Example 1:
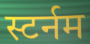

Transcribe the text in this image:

स्टर्नम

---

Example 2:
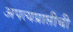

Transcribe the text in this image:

अपत्यप्राप्तीची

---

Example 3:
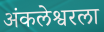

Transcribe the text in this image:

अंकलेश्वरला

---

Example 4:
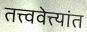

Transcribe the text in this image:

तत्त्ववेत्त्यांत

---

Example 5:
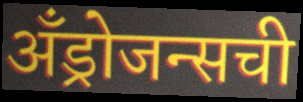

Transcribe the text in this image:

अँड्रोजन्सची